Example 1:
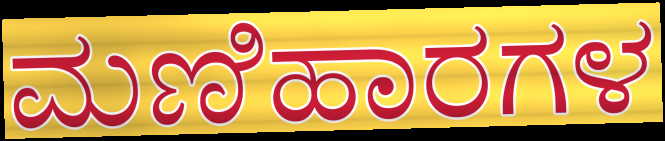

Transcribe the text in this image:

ಮಣಿಹಾರಗಳ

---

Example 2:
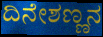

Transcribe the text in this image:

ದಿನೇಶಣ್ಣನ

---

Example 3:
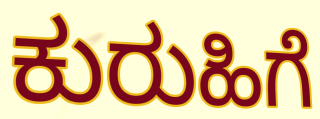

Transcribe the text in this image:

ಕುರುಹಿಗೆ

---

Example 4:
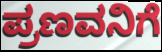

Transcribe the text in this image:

ಪ್ರಣವನಿಗೆ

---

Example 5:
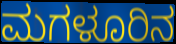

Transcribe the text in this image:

ಮಗಳೂರಿನ